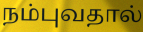
நம்புவதால்